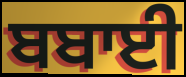
ਬਬਾਈ